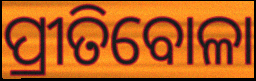
ପ୍ରୀତିବୋଳା